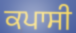
ਕਪਾਸੀ